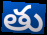
తు